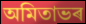
অমিতাভৰ